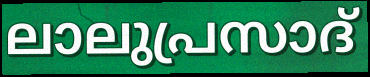
ലാലുപ്രസാദ്